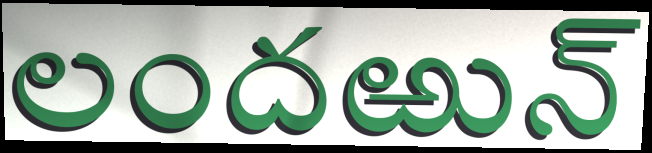
లందఱున్